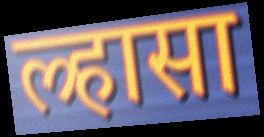
ल्हासा